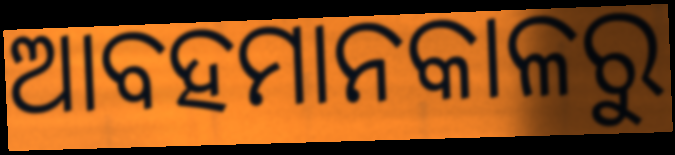
ଆବହମାନକାଳରୁ